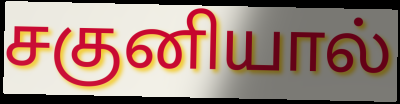
சகுனியால்